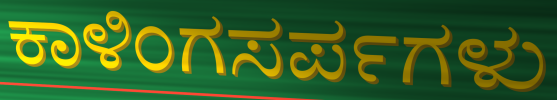
ಕಾಳಿಂಗಸರ್ಪಗಳು